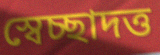
স্বেচ্ছাদত্ত